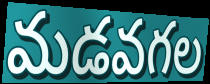
మడవగల